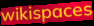
wikispaces